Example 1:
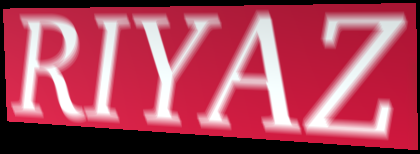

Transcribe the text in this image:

RIYAZ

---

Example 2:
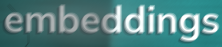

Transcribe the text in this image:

embeddings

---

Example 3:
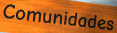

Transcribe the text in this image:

Comunidades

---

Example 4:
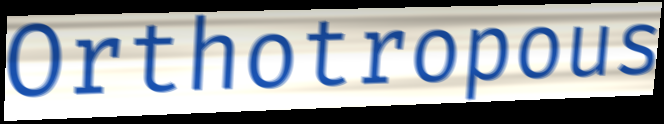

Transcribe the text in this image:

Orthotropous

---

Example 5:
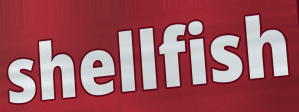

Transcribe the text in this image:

shellfish